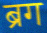
ब्रग